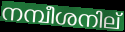
നമ്പീശനില്